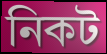
নিকট